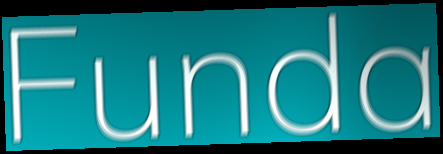
Funda